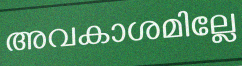
അവകാശമില്ലേ